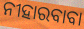
ନୀହାରବାବା